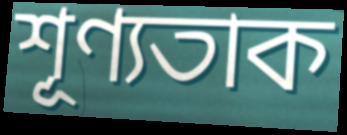
শূণ্যতাক